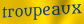
troupeaux